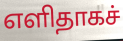
எளிதாகச்